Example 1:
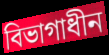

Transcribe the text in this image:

বিভাগাধীন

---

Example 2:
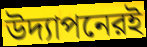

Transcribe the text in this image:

উদ্যাপনেরই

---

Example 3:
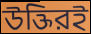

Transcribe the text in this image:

উক্তিরই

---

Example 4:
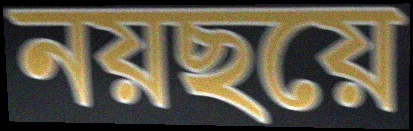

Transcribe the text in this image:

নয়ছয়ে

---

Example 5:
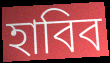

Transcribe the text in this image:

হাবিব